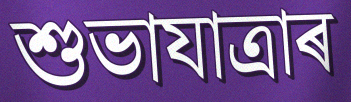
শুভাযাত্ৰাৰ